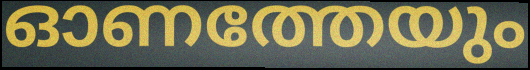
ഓണത്തേയും